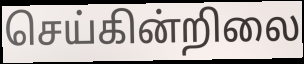
செய்கின்றிலை